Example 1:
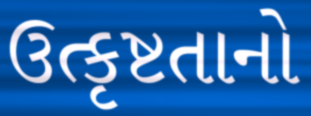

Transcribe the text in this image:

ઉત્કૃષ્ટતાનો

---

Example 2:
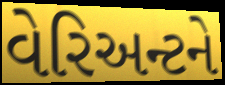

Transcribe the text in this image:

વેરિઅન્ટને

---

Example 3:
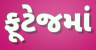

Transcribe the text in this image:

ફૂટેજમાં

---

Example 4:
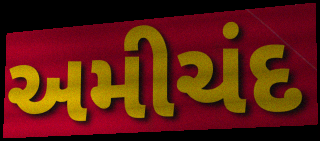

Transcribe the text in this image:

અમીચંદ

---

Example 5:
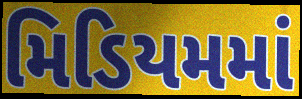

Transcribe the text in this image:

મિડિયમમાં